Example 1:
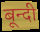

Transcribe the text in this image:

बून्दी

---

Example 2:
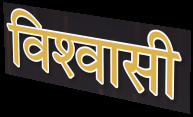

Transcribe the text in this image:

विश्‍वासी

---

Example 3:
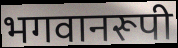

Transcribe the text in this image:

भगवानरूपी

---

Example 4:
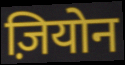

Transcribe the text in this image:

ज़ियोन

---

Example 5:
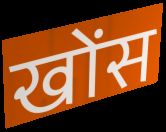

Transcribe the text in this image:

खोंस